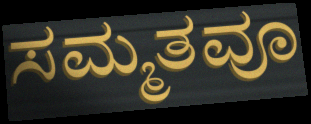
ಸಮ್ಮತವೂ